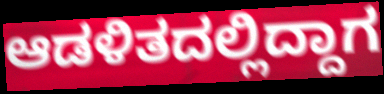
ಆಡಳಿತದಲ್ಲಿದ್ದಾಗ